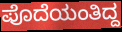
ಪೊದೆಯಂತಿದ್ದ